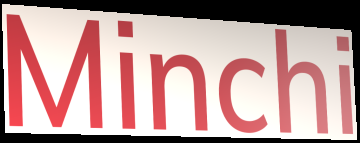
Minchi